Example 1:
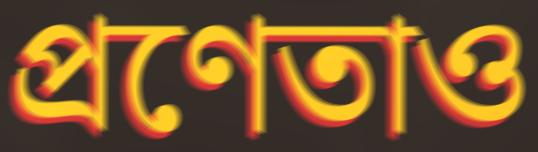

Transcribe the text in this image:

প্রণেতাও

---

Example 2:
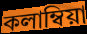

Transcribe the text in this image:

কলাম্বিয়া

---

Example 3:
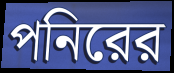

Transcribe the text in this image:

পনিরের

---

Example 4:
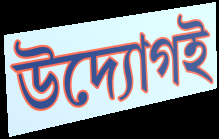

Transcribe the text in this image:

উদ্যোগই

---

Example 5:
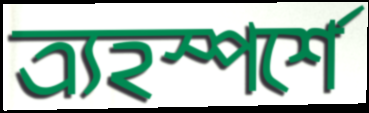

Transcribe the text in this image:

ত্র্যহস্পর্শে